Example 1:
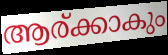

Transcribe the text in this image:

ആര്ക്കാകും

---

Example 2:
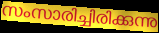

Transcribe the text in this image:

സംസാരിച്ചിരിക്കുന്നു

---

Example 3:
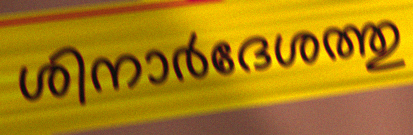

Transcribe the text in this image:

ശിനാർദേശത്തു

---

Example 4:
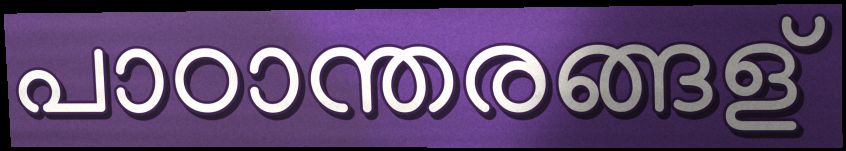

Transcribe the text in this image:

പാഠാന്തരങ്ങള്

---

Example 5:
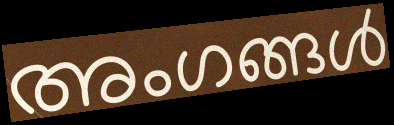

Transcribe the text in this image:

അംഗങ്ങൾ